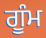
ਗੂੰਮ